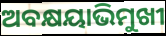
ଅବକ୍ଷୟାଭିମୁଖୀ